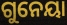
ଗୁନେୟା